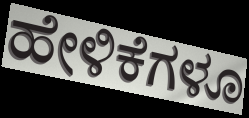
ಹೇಳಿಕೆಗಳೂ